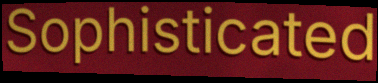
Sophisticated